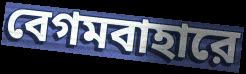
বেগমবাহারে